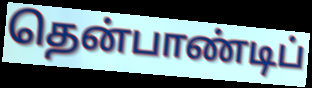
தென்பாண்டிப்